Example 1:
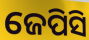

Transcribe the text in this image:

ଜେପିସି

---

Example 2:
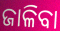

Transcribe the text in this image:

ଜାଳିବା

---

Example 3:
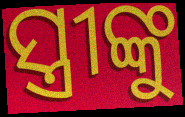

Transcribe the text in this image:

ସ୍ତ୍ରୀଙ୍କୁ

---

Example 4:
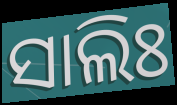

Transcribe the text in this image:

ସାଲିଃ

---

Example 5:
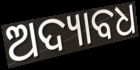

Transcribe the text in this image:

ଅଦ୍ୟାବଧ